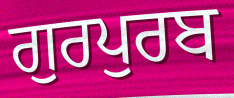
ਗੁਰਪੁਰਬ